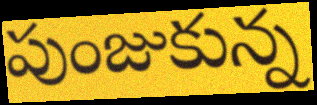
పుంజుకున్న